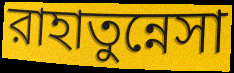
রাহাতুন্নেসা